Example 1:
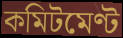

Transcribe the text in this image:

কমিটমেণ্ট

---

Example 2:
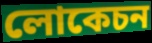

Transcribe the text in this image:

লোকেচন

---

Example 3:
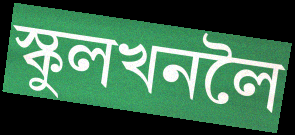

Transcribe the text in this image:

স্কুলখনলৈ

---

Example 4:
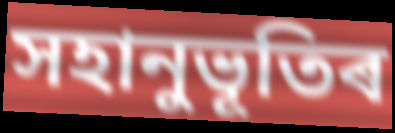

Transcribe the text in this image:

সহানুভূতিৰ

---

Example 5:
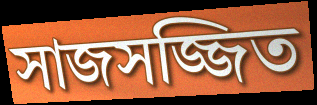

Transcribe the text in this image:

সাজসজ্জিত